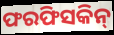
ଫରଫିସକିନ୍